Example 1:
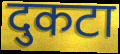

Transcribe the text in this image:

दुकटा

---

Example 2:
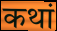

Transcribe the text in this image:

कथां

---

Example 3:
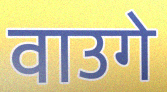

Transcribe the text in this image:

वाउगे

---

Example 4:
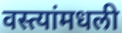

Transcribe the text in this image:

वस्त्यांमधली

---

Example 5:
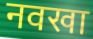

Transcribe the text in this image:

नवखा